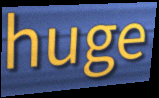
huge